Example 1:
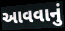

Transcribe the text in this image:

આવવાનું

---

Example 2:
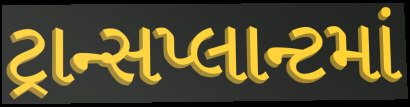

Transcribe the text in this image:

ટ્રાન્સપ્લાન્ટમાં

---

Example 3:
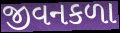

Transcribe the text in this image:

જીવનકળા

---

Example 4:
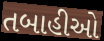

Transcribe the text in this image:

તબાહીઓ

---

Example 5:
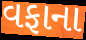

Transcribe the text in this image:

વફાના